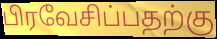
பிரவேசிப்பதற்கு